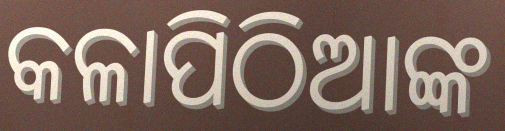
କଳାପିଠିଆଙ୍କ